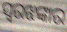
ସ୍ୱରଝଙ୍କାର